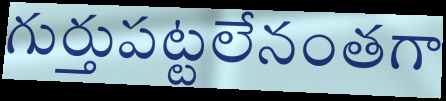
గుర్తుపట్టలేనంతగా